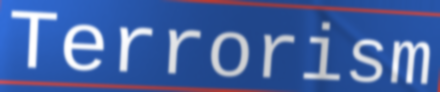
Terrorism